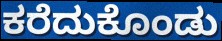
ಕರೆದುಕೊಂಡು